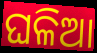
ଘଳିଆ